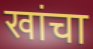
खांचा